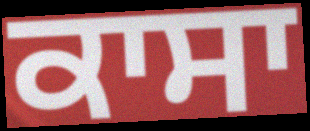
ਕਾਸਾ